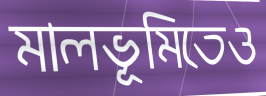
মালভূমিতেও